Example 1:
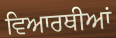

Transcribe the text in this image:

ਵਿਆਰਥੀਆਂ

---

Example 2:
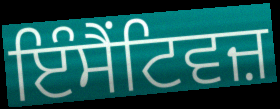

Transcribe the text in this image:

ਇੰਸੈਂਟਿਵਜ਼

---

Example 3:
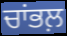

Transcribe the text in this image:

ਚਾਂਭਲ਼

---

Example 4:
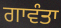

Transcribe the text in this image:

ਗਾਵੰਤਾ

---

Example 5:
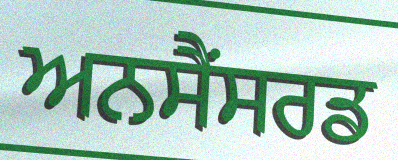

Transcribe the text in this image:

ਅਨਸੈਂਸਰਡ